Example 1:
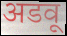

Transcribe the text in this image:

अडवू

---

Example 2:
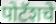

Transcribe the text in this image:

पोटॅशचे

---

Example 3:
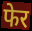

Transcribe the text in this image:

फेर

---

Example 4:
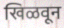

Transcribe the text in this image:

खिळवून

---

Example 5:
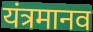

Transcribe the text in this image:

यंत्रमानव